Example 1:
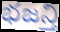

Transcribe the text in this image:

భజన్తి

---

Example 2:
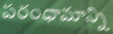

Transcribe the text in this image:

పరంధామాన్ని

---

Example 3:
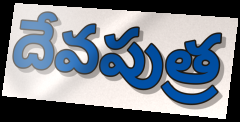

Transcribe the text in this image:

దేవపుత్ర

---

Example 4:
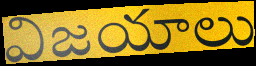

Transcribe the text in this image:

విజయాలు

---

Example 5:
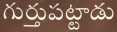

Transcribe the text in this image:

గుర్తుపట్టాడు